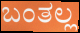
ಬಂತಲ್ಲ